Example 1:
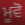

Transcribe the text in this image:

ਮੂਵੋ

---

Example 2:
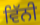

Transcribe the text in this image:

ਵਿੱਨੀ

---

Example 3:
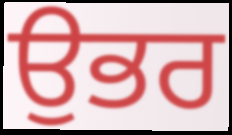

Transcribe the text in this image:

ਉਭਰ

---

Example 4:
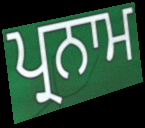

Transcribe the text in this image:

ਪ੍ਰਨਾਮ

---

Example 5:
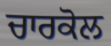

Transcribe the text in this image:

ਚਾਰਕੋਲ